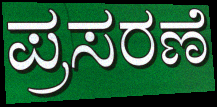
ಪ್ರಸರಣೆ